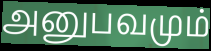
அனுபவமும்